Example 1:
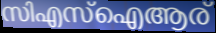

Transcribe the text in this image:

സിഎസ്ഐആര്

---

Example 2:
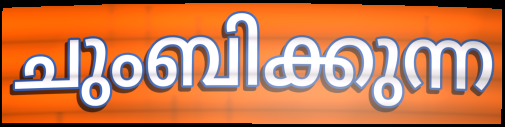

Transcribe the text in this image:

ചുംബിക്കുന്ന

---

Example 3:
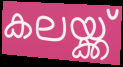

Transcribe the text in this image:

കലയ്ക്ക്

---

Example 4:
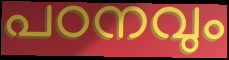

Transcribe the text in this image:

പഠനവും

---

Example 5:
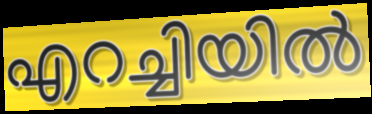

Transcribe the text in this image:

എറച്ചിയിൽ